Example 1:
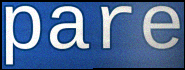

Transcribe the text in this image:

pare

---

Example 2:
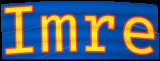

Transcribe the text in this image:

Imre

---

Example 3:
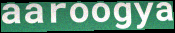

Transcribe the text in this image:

aaroogya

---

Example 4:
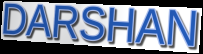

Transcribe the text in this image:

DARSHAN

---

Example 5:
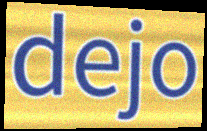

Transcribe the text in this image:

dejo